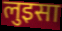
लुइसा